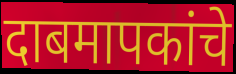
दाबमापकांचे